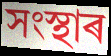
সংস্থাৰ